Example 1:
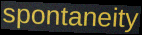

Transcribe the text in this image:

spontaneity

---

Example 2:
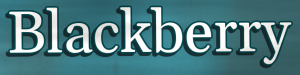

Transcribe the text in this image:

Blackberry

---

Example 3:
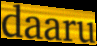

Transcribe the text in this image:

daaru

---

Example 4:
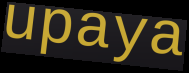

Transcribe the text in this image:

upaya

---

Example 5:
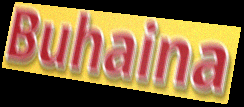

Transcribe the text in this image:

Buhaina